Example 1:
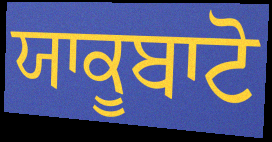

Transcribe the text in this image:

ਯਾਕੂਬਾਟੋ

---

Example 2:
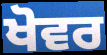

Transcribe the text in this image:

ਖੋਵਰ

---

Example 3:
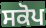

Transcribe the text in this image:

ਸਕੋਪ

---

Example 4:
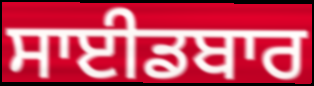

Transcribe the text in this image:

ਸਾਈਡਬਾਰ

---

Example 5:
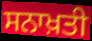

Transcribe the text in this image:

ਸਨਾਖ਼ਤੀ